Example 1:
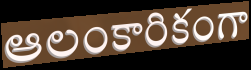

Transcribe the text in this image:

ఆలంకారికంగా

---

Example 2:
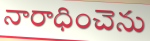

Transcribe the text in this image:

నారాధించెను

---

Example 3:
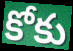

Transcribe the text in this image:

కోకు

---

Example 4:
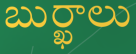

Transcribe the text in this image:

బుర్ఖాలు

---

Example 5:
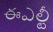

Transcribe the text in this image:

ఈఎల్టీ